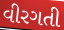
વીરગતી